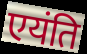
एयंति